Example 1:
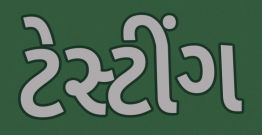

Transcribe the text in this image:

ટેસ્ટીંગ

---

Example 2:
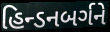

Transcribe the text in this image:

હિન્ડનબર્ગને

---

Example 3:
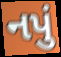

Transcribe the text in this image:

નપું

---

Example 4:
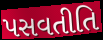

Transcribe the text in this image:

પસવતીતિ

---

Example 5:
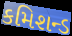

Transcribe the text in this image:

કમિશન્ડ